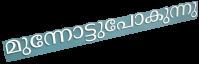
മുന്നോട്ടുപോകുന്നു